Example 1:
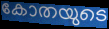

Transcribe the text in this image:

കോതയുടെ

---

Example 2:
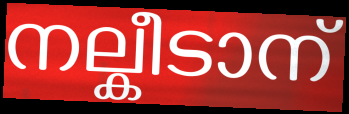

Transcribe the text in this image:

നല്കീടാന്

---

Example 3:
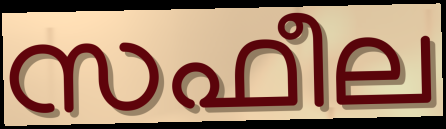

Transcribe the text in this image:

സഫീല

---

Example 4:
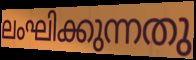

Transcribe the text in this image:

ലംഘിക്കുന്നതു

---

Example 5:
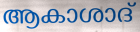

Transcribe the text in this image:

ആകാശാദ്